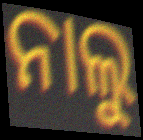
ନାଲୁ